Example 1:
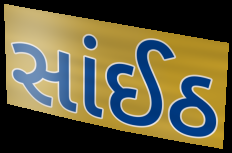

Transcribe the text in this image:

સાંઈઠ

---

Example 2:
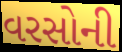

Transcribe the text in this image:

વરસોની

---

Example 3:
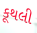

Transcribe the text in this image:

કૂથલી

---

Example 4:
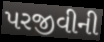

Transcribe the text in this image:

પરજીવીની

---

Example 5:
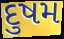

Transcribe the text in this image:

દુષમ